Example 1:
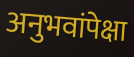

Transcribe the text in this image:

अनुभवांपेक्षा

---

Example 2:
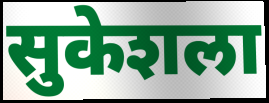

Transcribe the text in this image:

सुकेशला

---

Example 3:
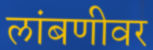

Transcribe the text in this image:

लांबणीवर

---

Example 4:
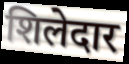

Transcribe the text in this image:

शिलेदार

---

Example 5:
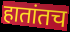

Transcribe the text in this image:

हातांतच